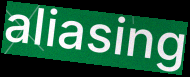
aliasing